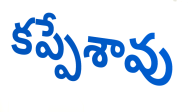
కప్పేశావు